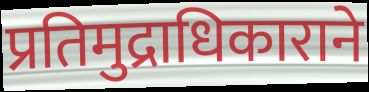
प्रतिमुद्राधिकाराने